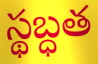
స్థబ్ధత